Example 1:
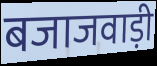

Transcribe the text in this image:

बजाजवाड़ी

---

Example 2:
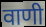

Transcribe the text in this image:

वाणी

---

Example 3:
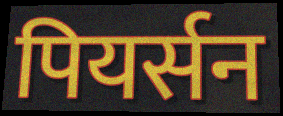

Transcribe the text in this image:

पियर्सन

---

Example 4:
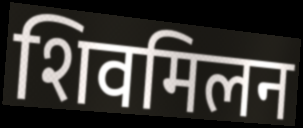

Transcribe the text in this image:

शिवमिलन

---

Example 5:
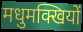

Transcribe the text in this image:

मधुमक्खियों